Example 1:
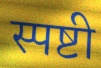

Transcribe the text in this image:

स्पष्टी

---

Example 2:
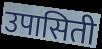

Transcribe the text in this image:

उपासिती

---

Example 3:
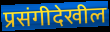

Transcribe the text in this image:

प्रसंगीदेखील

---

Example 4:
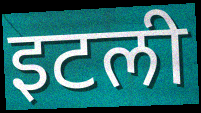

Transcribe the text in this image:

इटली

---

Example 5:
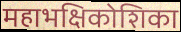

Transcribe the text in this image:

महाभक्षिकोशिका